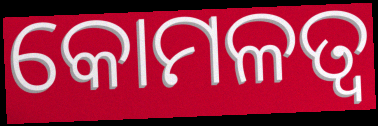
କୋମଳତ୍ୱ